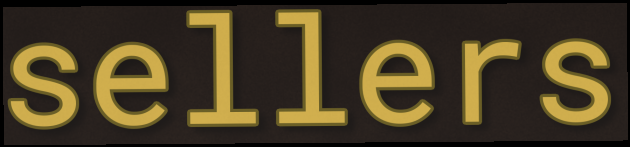
sellers